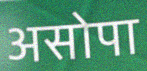
असोपा